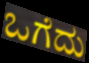
ಒಗೆದು